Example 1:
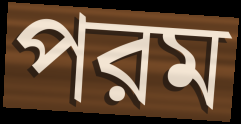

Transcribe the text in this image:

পরম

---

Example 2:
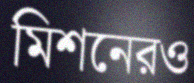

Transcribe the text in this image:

মিশনেরও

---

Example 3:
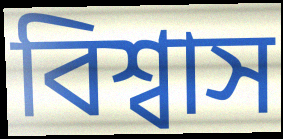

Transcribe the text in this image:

বিশ্বাস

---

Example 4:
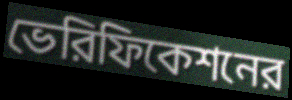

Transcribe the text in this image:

ভেরিফিকেশনের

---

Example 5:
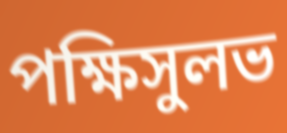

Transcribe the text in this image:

পক্ষিসুলভ